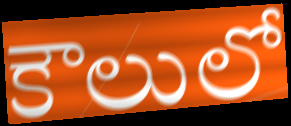
కౌలులో